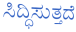
ಸಿದ್ಧಿಸುತ್ತದೆ